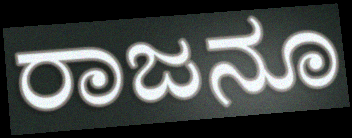
ರಾಜನೂ